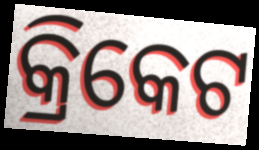
କ୍ରିକେଟ